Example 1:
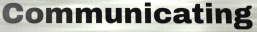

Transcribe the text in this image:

Communicating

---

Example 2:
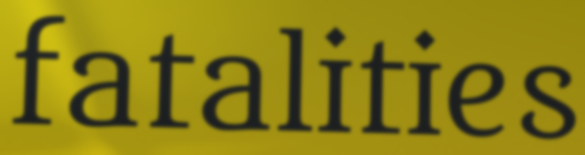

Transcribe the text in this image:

fatalities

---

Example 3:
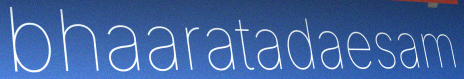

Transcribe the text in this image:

bhaaratadaesam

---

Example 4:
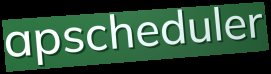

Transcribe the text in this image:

apscheduler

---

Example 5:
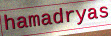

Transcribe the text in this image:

hamadryas